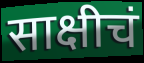
साक्षीचं